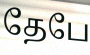
தேபே